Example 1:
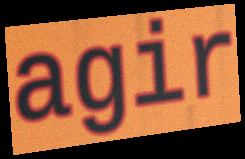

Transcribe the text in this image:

agir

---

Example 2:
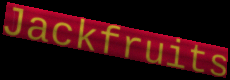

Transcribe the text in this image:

Jackfruits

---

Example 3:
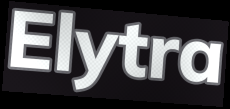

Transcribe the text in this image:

Elytra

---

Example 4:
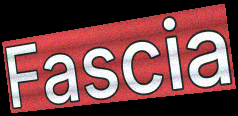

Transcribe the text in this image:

Fascia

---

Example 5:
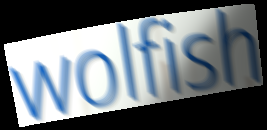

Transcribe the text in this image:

wolfish